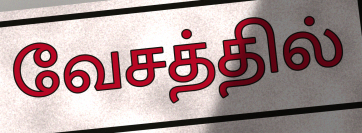
வேசத்தில்